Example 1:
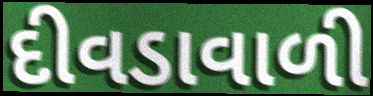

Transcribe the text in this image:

દીવડાવાળી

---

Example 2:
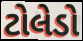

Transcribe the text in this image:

ટોલેડો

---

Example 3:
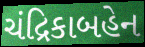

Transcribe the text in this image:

ચંદ્રિકાબહેન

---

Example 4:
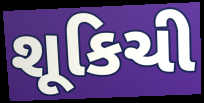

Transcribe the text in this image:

શૂકિચી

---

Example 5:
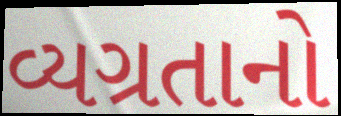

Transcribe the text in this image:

વ્યગ્રતાનો